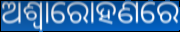
ଅଶ୍ୱାରୋହଣରେ